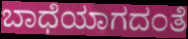
ಬಾಧೆಯಾಗದಂತೆ